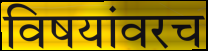
विषयांवरच